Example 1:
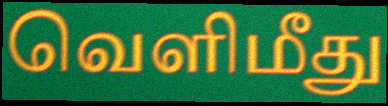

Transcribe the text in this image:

வெளிமீது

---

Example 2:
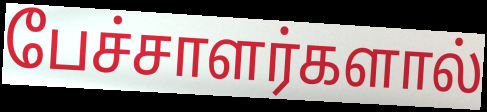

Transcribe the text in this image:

பேச்சாளர்களால்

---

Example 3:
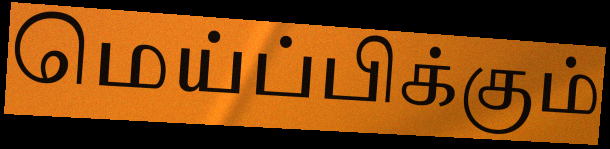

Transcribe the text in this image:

மெய்ப்பிக்கும்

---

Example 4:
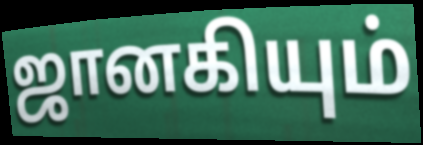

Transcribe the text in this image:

ஜானகியும்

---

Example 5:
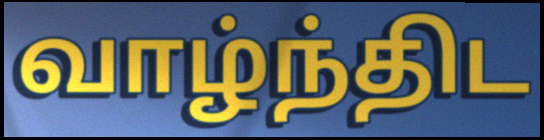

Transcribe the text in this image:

வாழ்ந்திட